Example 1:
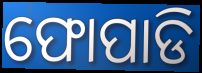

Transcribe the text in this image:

ଫୋପାଡି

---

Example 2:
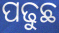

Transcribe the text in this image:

ପଢୁଛ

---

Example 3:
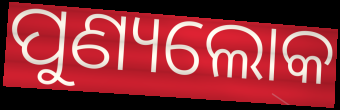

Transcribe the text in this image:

ପୁଣ୍ୟଲୋକ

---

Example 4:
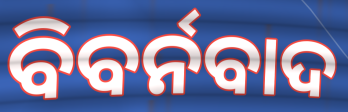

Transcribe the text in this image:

ବିବର୍ନବାଦ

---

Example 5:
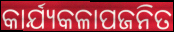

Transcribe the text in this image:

କାର୍ଯ୍ୟକଳାପଜନିତ